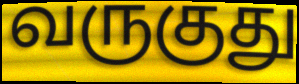
வருகுது